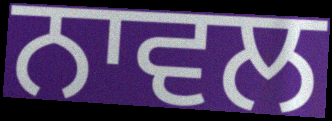
ਨਾਵਲ